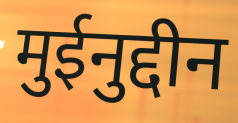
मुईनुद्दीन